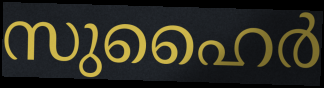
സുഹൈർ